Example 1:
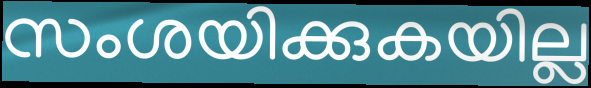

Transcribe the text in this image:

സംശയിക്കുകയില്ല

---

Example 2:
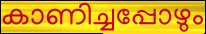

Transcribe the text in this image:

കാണിച്ചപ്പോഴും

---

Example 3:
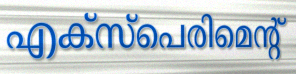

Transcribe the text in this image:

എക്സ്പെരിമെന്റ്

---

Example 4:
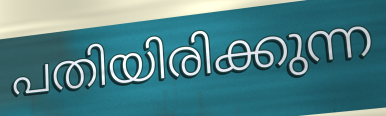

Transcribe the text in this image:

പതിയിരിക്കുന്ന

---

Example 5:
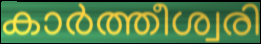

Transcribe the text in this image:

കാർത്തീശ്വരി